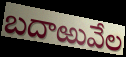
బదాఱువేల